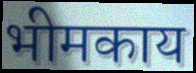
भीमकाय